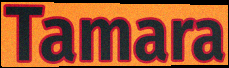
Tamara